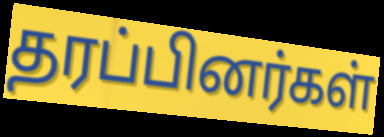
தரப்பினர்கள்